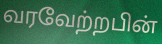
வரவேற்றபின்